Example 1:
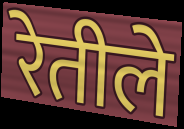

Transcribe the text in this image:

रेतीले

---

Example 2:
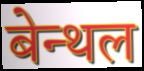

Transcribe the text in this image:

बेन्थल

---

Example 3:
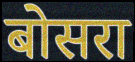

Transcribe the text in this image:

बोसरा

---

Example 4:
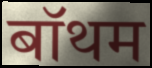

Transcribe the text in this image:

बॉथम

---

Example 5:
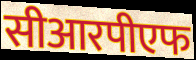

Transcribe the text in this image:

सीआरपीएफ